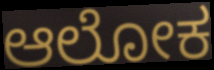
ಆಲೋಕ